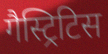
गैस्ट्रिटिस